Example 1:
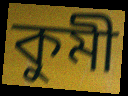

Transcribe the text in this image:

কুমী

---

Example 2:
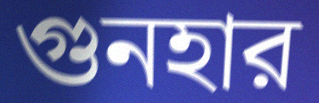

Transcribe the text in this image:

গুনহার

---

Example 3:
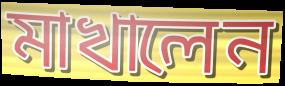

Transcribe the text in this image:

মাখালেন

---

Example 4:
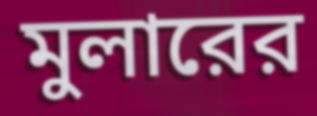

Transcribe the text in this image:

মুলারের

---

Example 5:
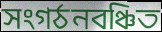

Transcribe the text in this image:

সংগঠনবঞ্চিত